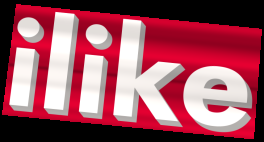
ilike